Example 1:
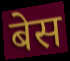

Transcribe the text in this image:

बेस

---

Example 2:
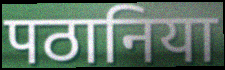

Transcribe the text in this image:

पठानिया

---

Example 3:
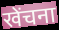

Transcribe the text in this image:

खेंचना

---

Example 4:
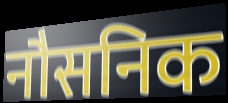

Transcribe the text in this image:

नौसनिक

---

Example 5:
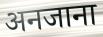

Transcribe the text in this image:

अनजाना